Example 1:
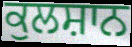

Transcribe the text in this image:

ਕੁਲਸ਼ਾਨ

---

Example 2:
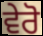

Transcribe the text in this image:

ਵੇਰੋ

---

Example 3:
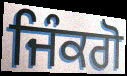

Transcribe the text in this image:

ਜਿੰਕਗੋ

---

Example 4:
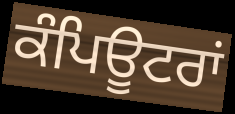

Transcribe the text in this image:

ਕੰਪਿਊਟਰਾਂ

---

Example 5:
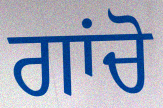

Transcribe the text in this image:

ਗਾਂਚੋ